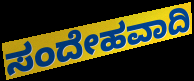
ಸಂದೇಹವಾದಿ